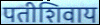
पतीशिवाय